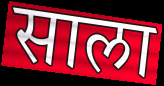
साला